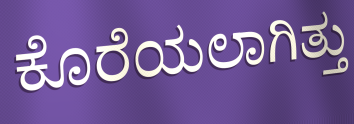
ಕೊರೆಯಲಾಗಿತ್ತು